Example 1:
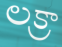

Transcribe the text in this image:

లక్రా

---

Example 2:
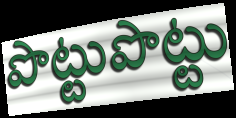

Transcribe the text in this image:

పొట్టుపొట్టు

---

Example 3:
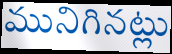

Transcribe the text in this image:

మునిగినట్లు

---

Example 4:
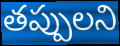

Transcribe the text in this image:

తప్పులని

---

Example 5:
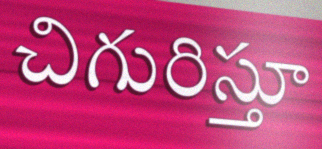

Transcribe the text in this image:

చిగురిస్తూ